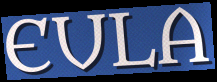
EULA